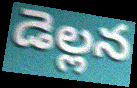
డెల్లన